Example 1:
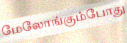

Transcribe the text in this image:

மேலோங்கும்போது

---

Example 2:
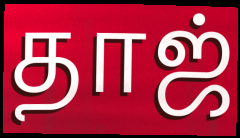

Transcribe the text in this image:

தாஜ்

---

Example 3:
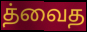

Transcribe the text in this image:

த்வைத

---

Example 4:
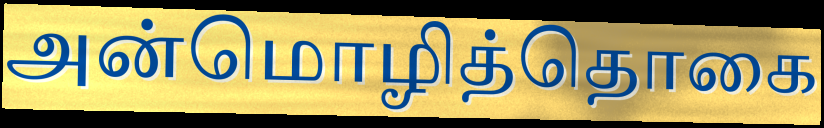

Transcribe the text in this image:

அன்மொழித்தொகை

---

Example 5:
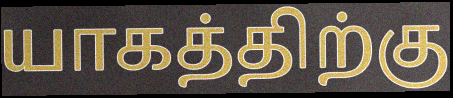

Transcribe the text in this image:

யாகத்திற்கு